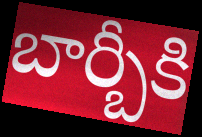
బార్బీకి